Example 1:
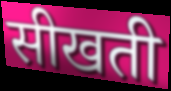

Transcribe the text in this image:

सीखती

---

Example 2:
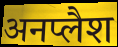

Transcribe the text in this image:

अनप्लैश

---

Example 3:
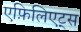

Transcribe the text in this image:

एफ़िलिएट्स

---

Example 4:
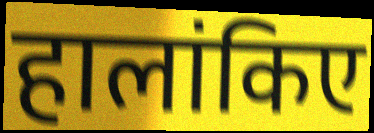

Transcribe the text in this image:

हालांकिए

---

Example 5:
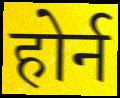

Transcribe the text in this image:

होर्न